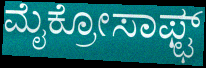
ಮೈಕ್ರೋಸಾಫ್ಟ್